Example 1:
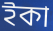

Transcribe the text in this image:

ইকা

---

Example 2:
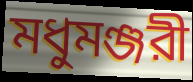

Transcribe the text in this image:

মধুমঞ্জরী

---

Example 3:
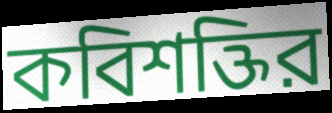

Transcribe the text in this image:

কবিশক্তির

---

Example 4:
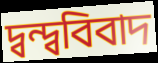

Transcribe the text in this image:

দ্বন্দ্ববিবাদ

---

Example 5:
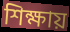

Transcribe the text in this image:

শিক্ষায়